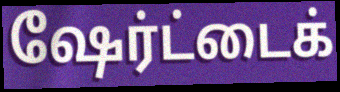
ஷேர்ட்டைக்